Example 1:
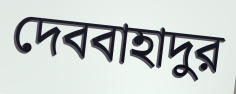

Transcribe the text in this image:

দেববাহাদুর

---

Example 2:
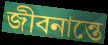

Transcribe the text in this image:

জীবনান্তে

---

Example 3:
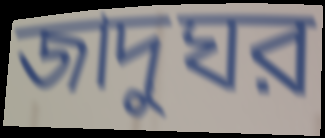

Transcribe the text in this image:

জাদুঘর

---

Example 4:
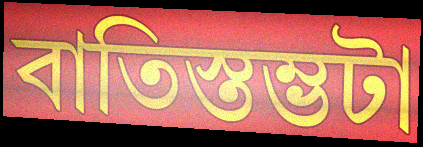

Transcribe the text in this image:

বাতিস্তম্ভটা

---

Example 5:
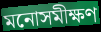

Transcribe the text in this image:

মনোসমীক্ষণ